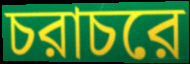
চরাচরে